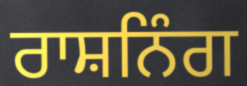
ਰਾਸ਼ਨਿੰਗ